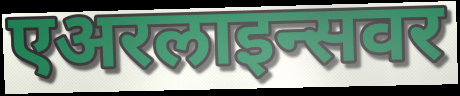
एअरलाइन्सवर